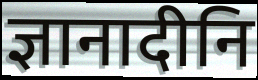
ज्ञानादीनि